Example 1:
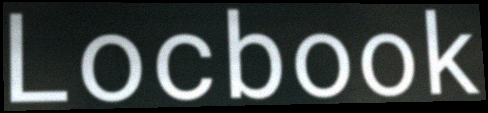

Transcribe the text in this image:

Locbook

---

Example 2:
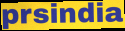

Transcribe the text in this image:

prsindia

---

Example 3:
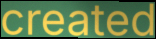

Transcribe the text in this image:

created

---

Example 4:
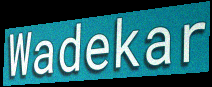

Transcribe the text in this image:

Wadekar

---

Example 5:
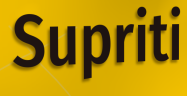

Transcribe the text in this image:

Supriti